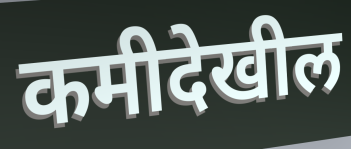
कमीदेखील